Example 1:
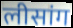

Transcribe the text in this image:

लीसांग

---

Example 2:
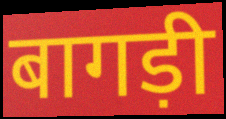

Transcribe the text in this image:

बागड़ी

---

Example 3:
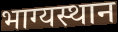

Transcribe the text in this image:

भाग्यस्थान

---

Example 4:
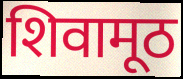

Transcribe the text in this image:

शिवामूठ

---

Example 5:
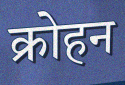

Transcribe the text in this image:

क्रोहन